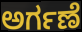
ಅರ್ಗಣೆ